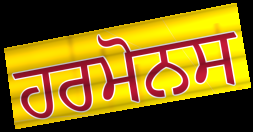
ਹਰਮੋਨਸ